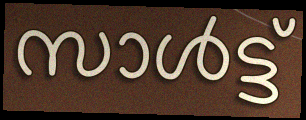
സാൾട്ട്